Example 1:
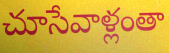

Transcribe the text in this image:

చూసేవాళ్లంతా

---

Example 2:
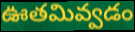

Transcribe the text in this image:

ఊతమివ్వడం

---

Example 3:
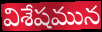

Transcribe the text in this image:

విశేషమున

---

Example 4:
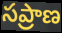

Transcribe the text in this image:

సప్రాణ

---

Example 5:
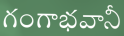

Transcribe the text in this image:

గంగాభవానీ